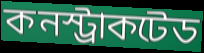
কনস্ট্রাকটেড